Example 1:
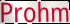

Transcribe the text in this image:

Prohm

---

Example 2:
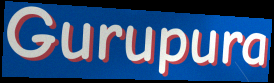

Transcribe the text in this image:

Gurupura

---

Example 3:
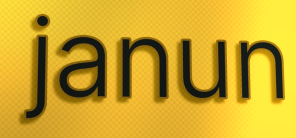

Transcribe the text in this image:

janun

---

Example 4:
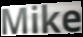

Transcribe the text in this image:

Mike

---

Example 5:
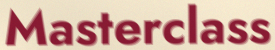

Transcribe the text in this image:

Masterclass